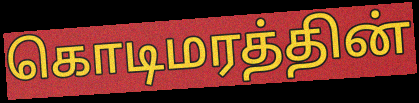
கொடிமரத்தின்